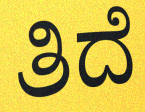
ತಿದೆ